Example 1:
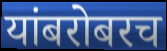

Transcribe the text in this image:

यांबरोबरच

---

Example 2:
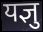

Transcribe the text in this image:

यज्ञु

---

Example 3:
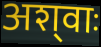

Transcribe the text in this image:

अश्वाः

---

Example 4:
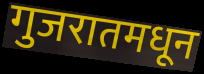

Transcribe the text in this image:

गुजरातमधून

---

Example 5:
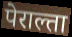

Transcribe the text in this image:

पेराल्ता